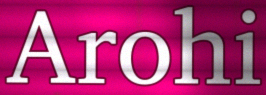
Arohi